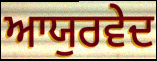
ਆਯੁਰਵੇਦ